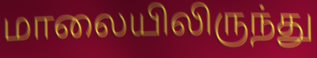
மாலையிலிருந்து